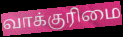
வாக்குரிமை